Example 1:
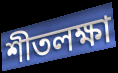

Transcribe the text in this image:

শীতলক্ষা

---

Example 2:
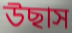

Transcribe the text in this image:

উছাস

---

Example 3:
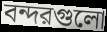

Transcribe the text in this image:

বন্দরগুলো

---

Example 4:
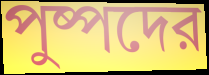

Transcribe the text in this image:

পুষ্পদের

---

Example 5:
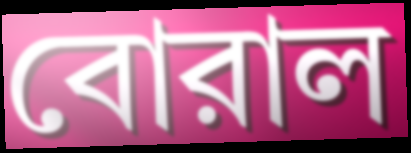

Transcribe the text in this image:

বোরাল